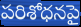
పరిశోధనపై